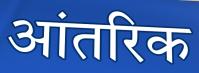
आंतरिक